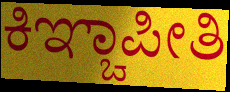
ಕಿಞ್ಚಾಪೀತಿ